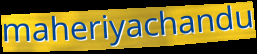
maheriyachandu